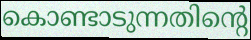
കൊണ്ടാടുന്നതിന്റെ